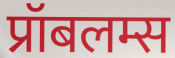
प्रॉबलम्स